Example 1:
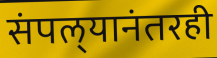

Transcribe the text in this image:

संपल्यानंतरही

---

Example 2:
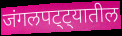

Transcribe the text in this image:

जंगलपट्ट्यातील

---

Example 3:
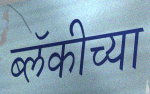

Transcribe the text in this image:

ब्लॅकीच्या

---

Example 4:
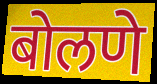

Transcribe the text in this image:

बोलणे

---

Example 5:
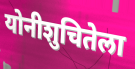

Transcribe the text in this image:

योनीशुचितेला